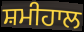
ਸ਼ਮੀਹਾਲ